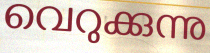
വെറുക്കുന്നു